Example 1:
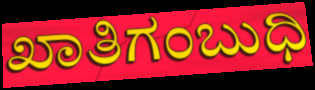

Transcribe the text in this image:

ಖಾತಿಗಂಬುಧಿ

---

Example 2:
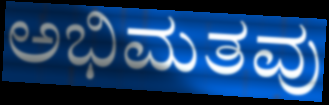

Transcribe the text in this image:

ಅಭಿಮತವು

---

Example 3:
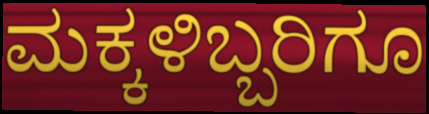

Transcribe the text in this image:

ಮಕ್ಕಳಿಬ್ಬರಿಗೂ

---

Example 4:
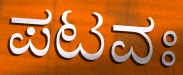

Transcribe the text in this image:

ಪಟವಃ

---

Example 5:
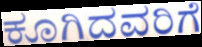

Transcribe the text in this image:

ಕೂಗಿದವರಿಗೆ